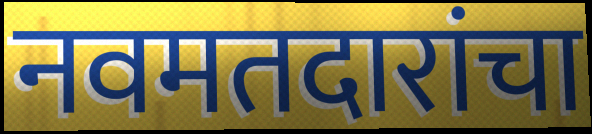
नवमतदारांचा